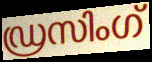
ഡ്രസിംഗ്